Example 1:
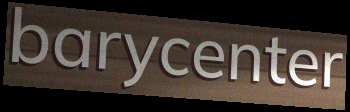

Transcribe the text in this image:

barycenter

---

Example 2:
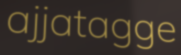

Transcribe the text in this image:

ajjatagge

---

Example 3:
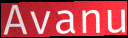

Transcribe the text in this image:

Avanu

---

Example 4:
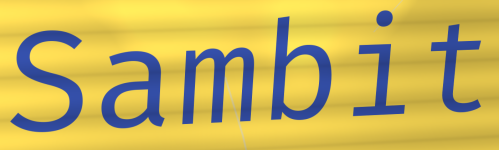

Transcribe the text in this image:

Sambit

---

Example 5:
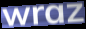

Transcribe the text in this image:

wraz